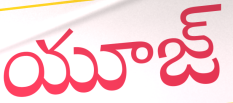
యూజ్